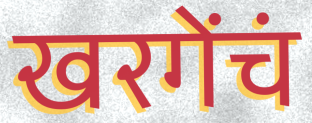
खरगेंचं